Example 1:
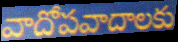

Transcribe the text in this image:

వాదోపవాదాలకు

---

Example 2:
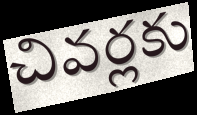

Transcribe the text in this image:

చివర్లకు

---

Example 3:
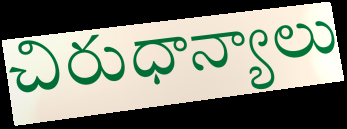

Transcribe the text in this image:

చిరుధాన్యాలు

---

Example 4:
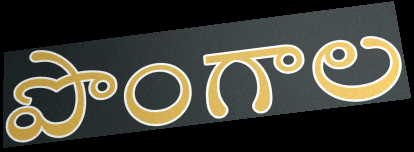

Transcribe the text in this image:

పొంగాల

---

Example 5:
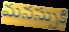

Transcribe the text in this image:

మనస్సుకి